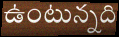
ఉంటున్నది